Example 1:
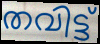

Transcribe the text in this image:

തവിട്ട്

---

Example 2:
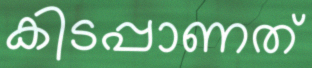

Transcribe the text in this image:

കിടപ്പാണത്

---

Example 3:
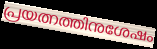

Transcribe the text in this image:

പ്രയത്നത്തിനുശേഷം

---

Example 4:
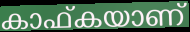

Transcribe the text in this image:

കാഫ്കയാണ്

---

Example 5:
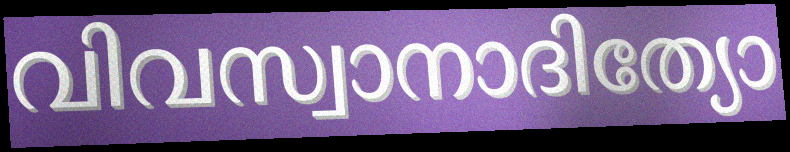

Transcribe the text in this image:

വിവസ്വാനാദിത്യോ